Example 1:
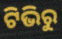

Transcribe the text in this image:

ଟିଭିରୁ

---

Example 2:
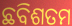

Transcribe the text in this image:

ଛବିଶତମ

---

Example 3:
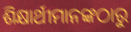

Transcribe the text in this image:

ଶିକ୍ଷାର୍ଥୀମାନଙ୍କଠାରୁ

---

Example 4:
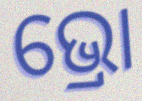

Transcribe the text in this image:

ଭ୍ରୋ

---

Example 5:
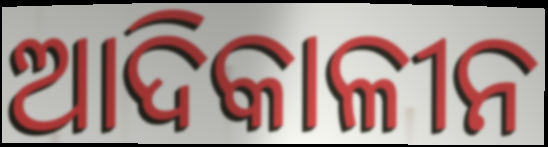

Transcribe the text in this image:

ଆଦିକାଳୀନ